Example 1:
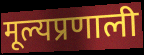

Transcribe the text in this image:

मूल्यप्रणाली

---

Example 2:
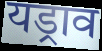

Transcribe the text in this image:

यड्राव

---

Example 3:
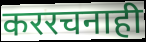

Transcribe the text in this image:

कररचनाही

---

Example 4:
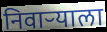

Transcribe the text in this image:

निवाऱ्याला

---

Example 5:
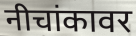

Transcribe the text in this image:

नीचांकावर